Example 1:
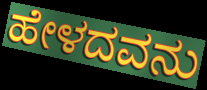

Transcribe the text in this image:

ಹೇಳದವನು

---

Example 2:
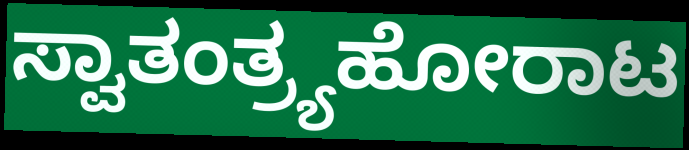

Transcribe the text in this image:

ಸ್ವಾತಂತ್ರ್ಯಹೋರಾಟ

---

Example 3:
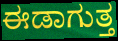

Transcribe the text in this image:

ಈಡಾಗುತ್ತ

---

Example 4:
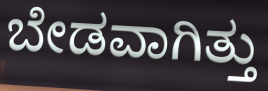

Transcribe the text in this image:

ಬೇಡವಾಗಿತ್ತು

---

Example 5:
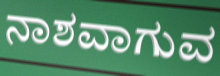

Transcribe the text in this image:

ನಾಶವಾಗುವ